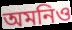
অমনিও